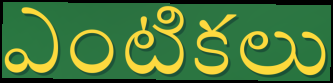
ఎంటికలు